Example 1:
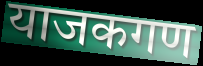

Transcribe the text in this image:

याजकगण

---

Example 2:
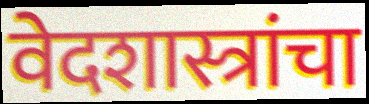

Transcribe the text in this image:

वेदशास्त्रांचा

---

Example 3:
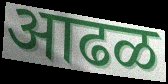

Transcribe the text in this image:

आढळ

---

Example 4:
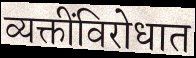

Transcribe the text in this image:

व्यक्तींविरोधात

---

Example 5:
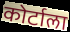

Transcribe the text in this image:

कोर्टाला